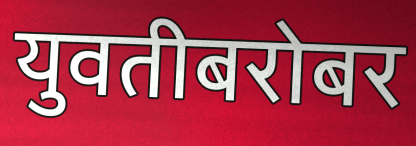
युवतीबरोबर